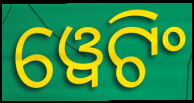
ୱେଟିଂ